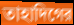
তাহাদিগের